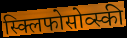
स्क्लिफोसोव्स्की